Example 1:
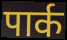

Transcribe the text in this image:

पार्क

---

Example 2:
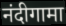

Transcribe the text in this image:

नंदीगामा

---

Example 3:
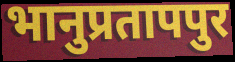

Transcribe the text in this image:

भानुप्रतापपुर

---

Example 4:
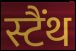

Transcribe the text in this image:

स्टैंथ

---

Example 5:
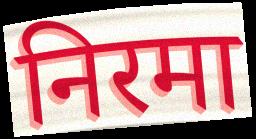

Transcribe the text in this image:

निरमा